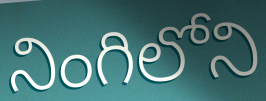
నింగిలోని